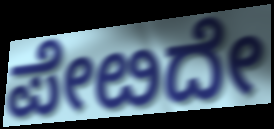
ಪೇೞದೇ